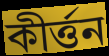
কীৰ্ত্তন